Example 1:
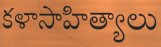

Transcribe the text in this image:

కళాసాహిత్యాలు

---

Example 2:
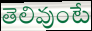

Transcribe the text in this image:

తెలివుంటే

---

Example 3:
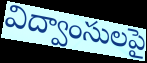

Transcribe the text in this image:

విద్వాంసులపై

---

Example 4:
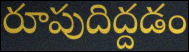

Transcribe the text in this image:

రూపుదిద్దడం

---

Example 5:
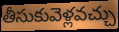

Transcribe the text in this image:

తీసుకువెళ్లవచ్చు